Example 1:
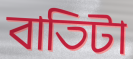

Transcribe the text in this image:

বাতিটা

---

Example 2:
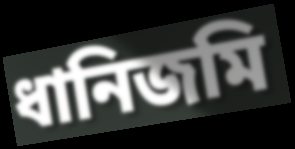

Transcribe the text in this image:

ধানিজমি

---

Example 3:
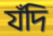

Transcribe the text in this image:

যঁদি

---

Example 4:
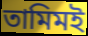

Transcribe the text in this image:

তামিমই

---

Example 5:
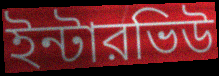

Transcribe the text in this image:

ইন্টারভিউ